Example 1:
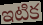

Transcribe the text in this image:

ఇటిక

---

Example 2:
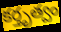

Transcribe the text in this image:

కర్తృత్వం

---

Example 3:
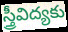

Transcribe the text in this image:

స్త్రీవిద్యకు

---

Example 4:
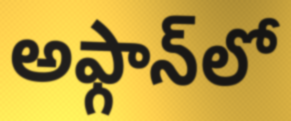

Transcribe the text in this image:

అఫ్గాన్‌లో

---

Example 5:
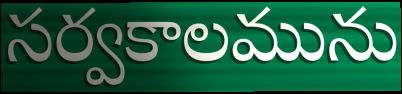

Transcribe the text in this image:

సర్వకాలమును